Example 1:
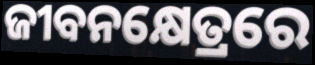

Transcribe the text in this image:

ଜୀବନକ୍ଷେତ୍ରରେ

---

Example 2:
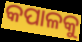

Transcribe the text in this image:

କପାଳକୁ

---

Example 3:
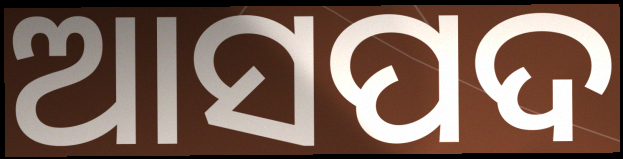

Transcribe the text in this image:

ଆସପଦ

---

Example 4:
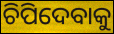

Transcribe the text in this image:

ଚିପିଦେବାକୁ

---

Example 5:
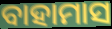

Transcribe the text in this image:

ବାହାମାସ